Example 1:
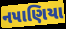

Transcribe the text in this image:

નપાણિયા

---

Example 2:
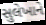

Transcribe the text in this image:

સુલેખાને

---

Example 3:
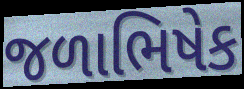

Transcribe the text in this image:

જળાભિષેક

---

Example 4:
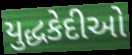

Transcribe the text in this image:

યુદ્ધકેદીઓ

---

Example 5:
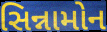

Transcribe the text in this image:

સિન્નામોન